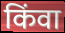
किंवा